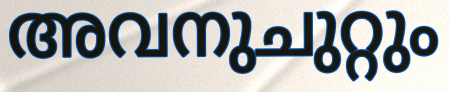
അവനുചുറ്റും